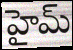
హైమ్